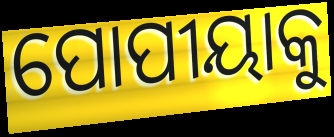
ପୋପୀୟାକୁ